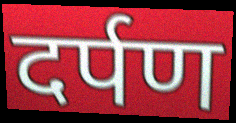
दर्पण